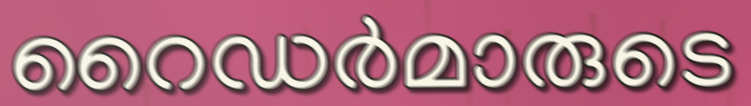
റൈഡർമാരുടെ